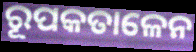
ରୂପକତାଳେନ